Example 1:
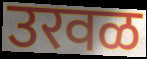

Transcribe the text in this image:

उरवळ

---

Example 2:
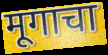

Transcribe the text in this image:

मूगाचा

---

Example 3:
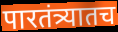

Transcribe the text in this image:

पारतंत्र्यातच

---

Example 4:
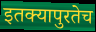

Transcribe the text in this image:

इतक्यापुरतेच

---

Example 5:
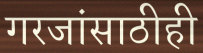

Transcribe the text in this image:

गरजांसाठीही